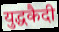
युद्धकैदी